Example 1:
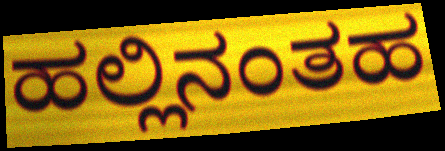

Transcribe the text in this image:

ಹಲ್ಲಿನಂತಹ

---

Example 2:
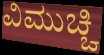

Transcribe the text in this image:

ವಿಮುಚ್ಚಿ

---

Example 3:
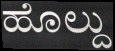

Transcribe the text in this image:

ಹೊಲ್ದು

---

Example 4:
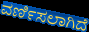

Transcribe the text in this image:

ವರ್ಣಿಸಲಾಗಿದೆ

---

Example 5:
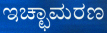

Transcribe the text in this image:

ಇಚ್ಛಾಮರಣ